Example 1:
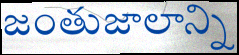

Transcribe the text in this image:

జంతుజాలాన్ని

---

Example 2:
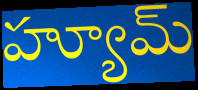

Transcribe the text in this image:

హ్యూమ్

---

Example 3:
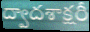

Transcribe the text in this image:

ద్వాదశాక్షరీ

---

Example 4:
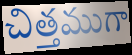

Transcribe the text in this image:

చిత్తముగా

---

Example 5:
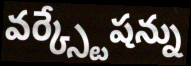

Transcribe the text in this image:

వర్క్స్టేషన్ను